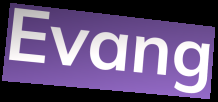
Evang